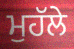
ਮੁਹੱਲੇ